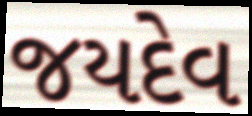
જયદેવ